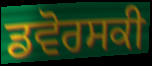
ਡਵੋਰਸਕੀ